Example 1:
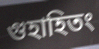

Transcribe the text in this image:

গুহাহিতং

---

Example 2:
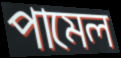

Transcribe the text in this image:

পামেল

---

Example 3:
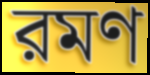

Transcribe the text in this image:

রমণ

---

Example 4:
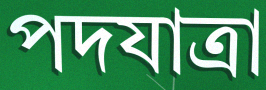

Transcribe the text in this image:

পদযাত্রা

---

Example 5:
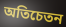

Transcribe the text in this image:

অতিচেতন